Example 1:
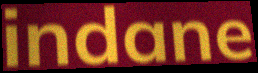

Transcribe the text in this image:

indane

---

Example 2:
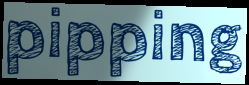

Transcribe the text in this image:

pipping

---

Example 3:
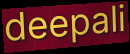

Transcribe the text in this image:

deepali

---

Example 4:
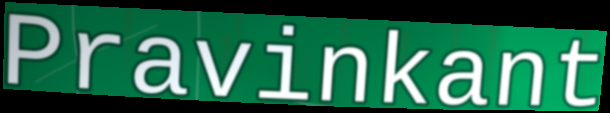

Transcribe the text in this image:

Pravinkant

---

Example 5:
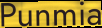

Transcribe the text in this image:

Punmia